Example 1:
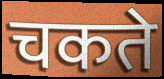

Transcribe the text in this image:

चकते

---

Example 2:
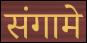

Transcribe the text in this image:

संगामे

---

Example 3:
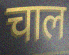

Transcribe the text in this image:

चाल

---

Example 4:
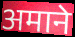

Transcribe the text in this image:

अमाने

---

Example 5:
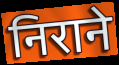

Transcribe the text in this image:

निराने